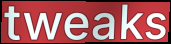
tweaks